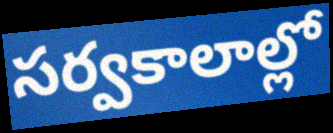
సర్వకాలాల్లో